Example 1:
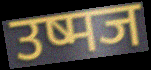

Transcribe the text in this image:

उष्मज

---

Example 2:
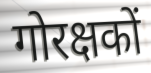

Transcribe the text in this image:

गोरक्षकों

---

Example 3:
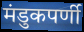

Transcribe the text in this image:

मंडुकपर्णी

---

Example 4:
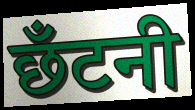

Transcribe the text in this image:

छँटनी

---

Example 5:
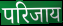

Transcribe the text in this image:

परिजाय